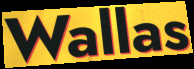
Wallas